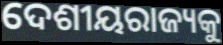
ଦେଶୀୟରାଜ୍ୟକୁ